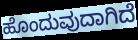
ಹೊಂದುವುದಾಗಿದೆ